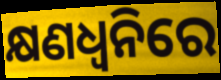
କ୍ଷଣଧ୍ୱନିରେ